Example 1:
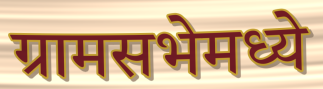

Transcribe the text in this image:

ग्रामसभेमध्ये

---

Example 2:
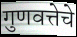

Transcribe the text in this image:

गुणवत्तेचे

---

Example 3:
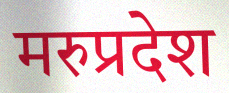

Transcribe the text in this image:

मरुप्रदेश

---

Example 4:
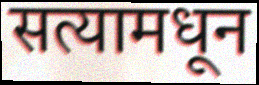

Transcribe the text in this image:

सत्यामधून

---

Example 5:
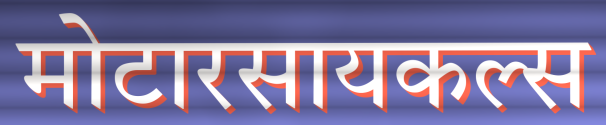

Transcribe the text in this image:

मोटारसायकल्स